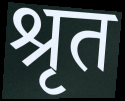
श्रृत